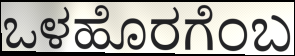
ಒಳಹೊರಗೆಂಬ